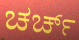
ಚರ್ಚ್